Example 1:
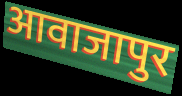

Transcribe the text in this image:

आवाजापुर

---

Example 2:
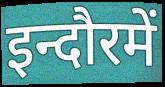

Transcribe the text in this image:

इन्दौरमें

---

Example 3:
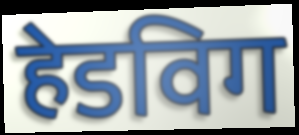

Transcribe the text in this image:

हेडविग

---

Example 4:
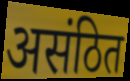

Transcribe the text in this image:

असंठित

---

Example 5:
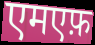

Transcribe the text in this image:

एमएफ़